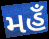
મહઁ